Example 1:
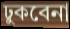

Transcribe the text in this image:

ঢুকবেনা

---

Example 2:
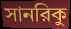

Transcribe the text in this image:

সানরিকু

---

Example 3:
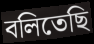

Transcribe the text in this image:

বলিতেছি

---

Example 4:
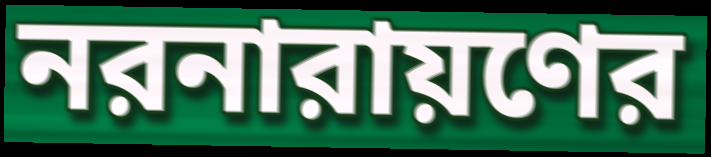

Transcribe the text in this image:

নরনারায়ণের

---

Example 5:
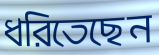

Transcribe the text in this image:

ধরিতেছেন